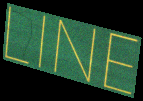
LINE